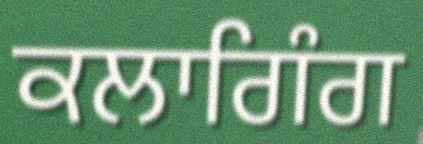
ਕਲਾਗਿੰਗ